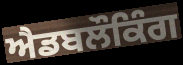
ਐਡਬਲੌਕਿੰਗ